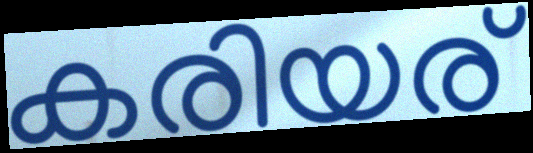
കരിയര്